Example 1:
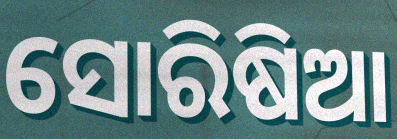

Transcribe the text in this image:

ସୋରିଷିଆ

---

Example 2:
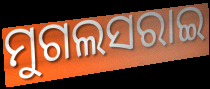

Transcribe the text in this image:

ମୁଗଲସରାଇ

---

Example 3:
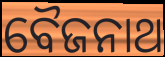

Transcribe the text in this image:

ବୈଜନାଥ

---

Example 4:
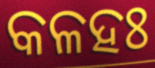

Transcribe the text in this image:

କଳହଃ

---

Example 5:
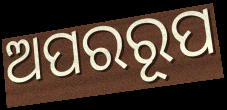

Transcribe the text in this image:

ଅପରରୂପ